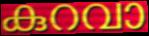
കുറവാ